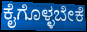
ಕೈಗೊಳ್ಳಬೇಕೆ